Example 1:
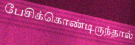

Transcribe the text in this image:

பேசிக்கொண்டிருந்தால்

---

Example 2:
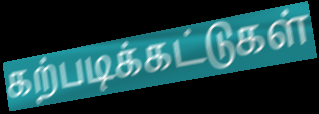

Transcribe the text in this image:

கற்படிக்கட்டுகள்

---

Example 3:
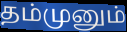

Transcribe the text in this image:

தம்முனும்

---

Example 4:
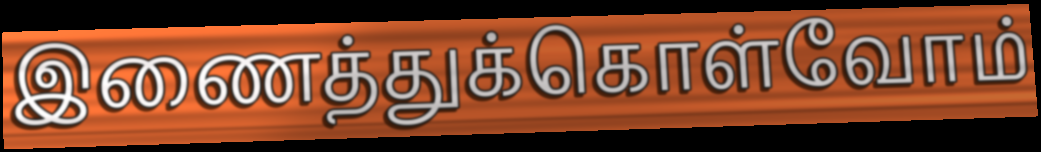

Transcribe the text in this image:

இணைத்துக்கொள்வோம்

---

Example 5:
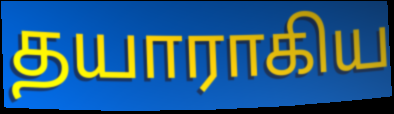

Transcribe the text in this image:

தயாராகிய